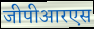
जीपीआरएस